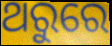
ଥରୁରେ